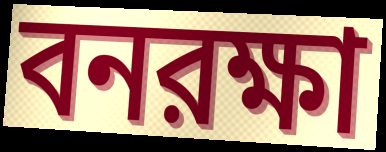
বনরক্ষা